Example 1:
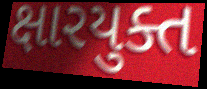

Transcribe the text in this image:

ક્ષારયુક્ત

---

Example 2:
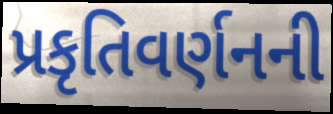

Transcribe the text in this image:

પ્રકૃતિવર્ણનની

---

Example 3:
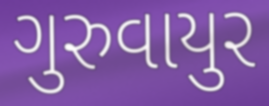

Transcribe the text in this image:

ગુરુવાયુર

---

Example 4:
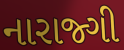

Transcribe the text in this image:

નારાજ્ગી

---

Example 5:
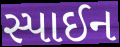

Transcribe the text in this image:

સ્પાઈન